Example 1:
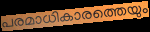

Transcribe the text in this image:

പരമാധികാരത്തെയും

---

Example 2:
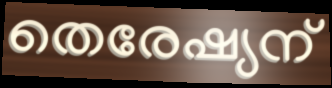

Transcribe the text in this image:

തെരേഷ്യന്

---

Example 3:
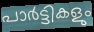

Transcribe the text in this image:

പാർട്ടികളും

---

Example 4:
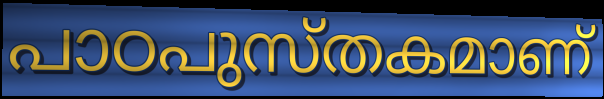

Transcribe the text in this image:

പാഠപുസ്തകമാണ്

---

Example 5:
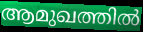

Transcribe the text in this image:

ആമുഖത്തിൽ